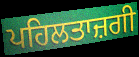
ਪਹਿਲਤਾਜ਼ਗੀ